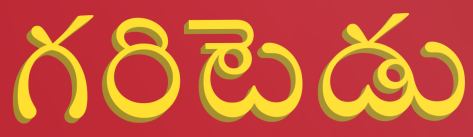
గరిటెడు